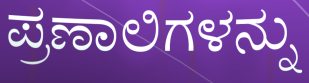
ಪ್ರಣಾಲಿಗಳನ್ನು